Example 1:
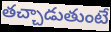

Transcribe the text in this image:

తచ్చాడుతుంటే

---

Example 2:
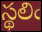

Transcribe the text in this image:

స్థలిఁ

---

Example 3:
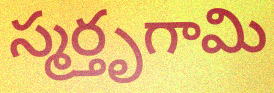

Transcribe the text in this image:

స్మర్తృగామి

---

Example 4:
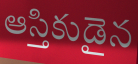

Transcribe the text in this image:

ఆస్తికుడైన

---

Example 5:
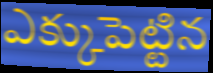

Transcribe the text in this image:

ఎక్కుపెట్టిన